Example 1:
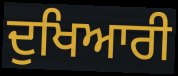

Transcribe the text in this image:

ਦੁਖਿਆਰੀ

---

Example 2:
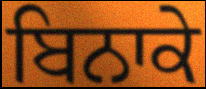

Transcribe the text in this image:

ਬਿਨਾਕੇ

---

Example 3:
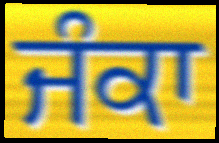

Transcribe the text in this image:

ਜੰਕਾ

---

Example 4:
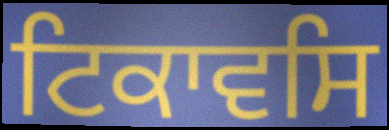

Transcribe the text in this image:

ਟਿਕਾਵਸਿ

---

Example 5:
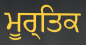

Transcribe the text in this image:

ਮੂਰ੍ਤਿਕ